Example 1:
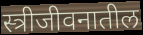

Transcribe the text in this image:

स्त्रीजीवनातील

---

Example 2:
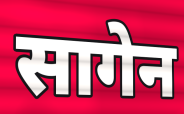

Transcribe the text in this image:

सागेन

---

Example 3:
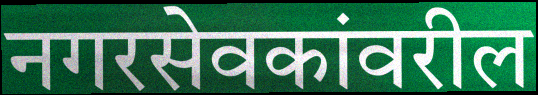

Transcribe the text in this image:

नगरसेवकांवरील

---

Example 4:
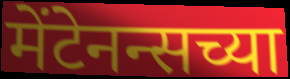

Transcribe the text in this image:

मेंटेनन्सच्या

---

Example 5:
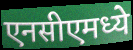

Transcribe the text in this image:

एनसीएमध्ये